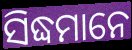
ସିଦ୍ଧମାନେ